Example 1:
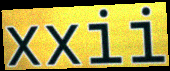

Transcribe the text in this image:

xxii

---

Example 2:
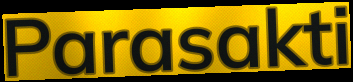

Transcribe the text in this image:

Parasakti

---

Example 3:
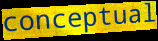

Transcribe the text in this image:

conceptual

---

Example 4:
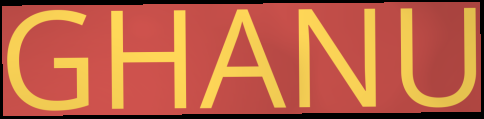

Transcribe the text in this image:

GHANU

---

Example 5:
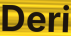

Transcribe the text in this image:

Deri